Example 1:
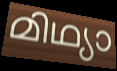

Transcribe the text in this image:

മിഥ്യാ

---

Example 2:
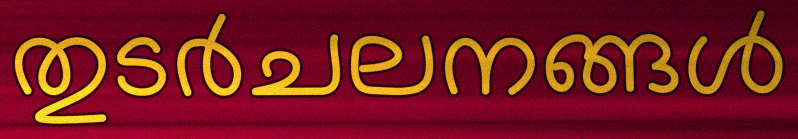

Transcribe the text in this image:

തുടർചലനങ്ങൾ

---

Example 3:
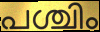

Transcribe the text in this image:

പശ്ചിം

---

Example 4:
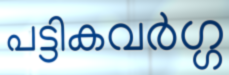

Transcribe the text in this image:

പട്ടികവർഗ്ഗ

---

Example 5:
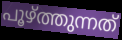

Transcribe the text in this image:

പൂഴ്ത്തുന്നത്